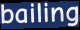
bailing